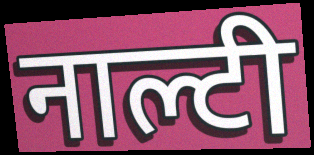
नाल्टी